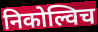
निकोल्विच